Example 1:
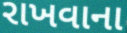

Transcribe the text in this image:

રાખવાના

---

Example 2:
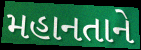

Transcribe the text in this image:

મહાનતાને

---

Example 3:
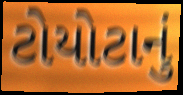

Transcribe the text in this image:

ટોયોટાનું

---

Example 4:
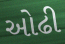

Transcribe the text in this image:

ઓઢી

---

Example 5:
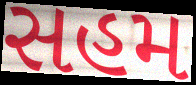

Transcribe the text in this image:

સહમ